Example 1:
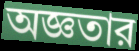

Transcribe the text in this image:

অজ্ঞতার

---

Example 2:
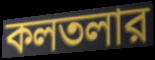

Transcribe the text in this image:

কলতলার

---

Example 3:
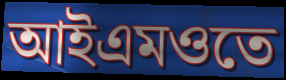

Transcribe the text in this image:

আইএমওতে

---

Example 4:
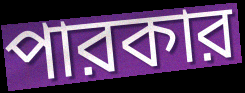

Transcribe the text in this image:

পারকার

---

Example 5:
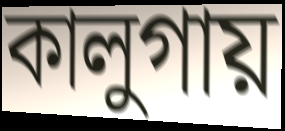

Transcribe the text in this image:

কালুগায়